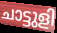
ചാട്ടുളി